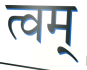
त्वम्